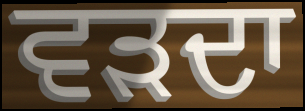
ਵੜਦਾ